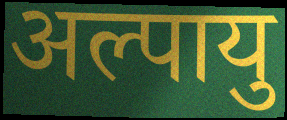
अल्पायु